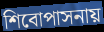
শিবোপাসনায়